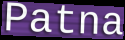
Patna